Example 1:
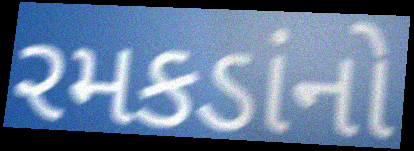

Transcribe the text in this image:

રમકડાંનો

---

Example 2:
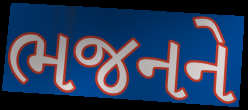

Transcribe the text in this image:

ભજનને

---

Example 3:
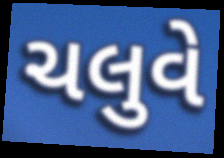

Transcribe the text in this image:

ચલુવે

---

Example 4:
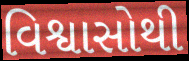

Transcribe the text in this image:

વિશ્વાસોથી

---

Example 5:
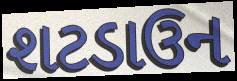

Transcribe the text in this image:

શટડાઉન